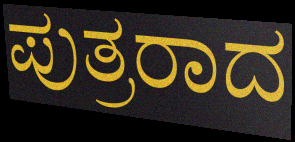
ಪುತ್ರರಾದ